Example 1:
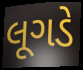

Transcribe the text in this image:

લૂગડે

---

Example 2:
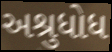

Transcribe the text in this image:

અશ્રુધોધ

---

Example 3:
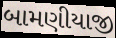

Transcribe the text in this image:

બામણીયાજી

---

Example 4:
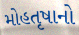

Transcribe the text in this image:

મોહતૃષાનો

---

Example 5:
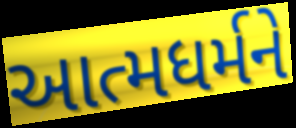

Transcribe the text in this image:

આત્મધર્મને